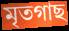
মৃতগাছ